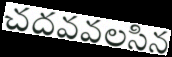
చదవవలసిన